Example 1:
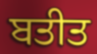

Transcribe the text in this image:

ਬਤੀਤ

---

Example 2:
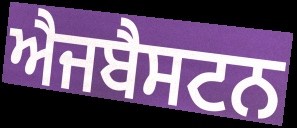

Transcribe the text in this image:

ਐਜਬੈਸਟਨ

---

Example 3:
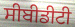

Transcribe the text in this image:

ਸੀਬੀਡੀਟੀ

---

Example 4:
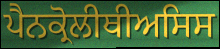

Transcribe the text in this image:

ਪੈਨਕ੍ਰੋਲੀਥੀਅਸਿਸ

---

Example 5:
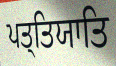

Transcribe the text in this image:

ਪਤ੍ਤਿਯਾਤਿ